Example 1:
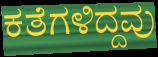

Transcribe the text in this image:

ಕತೆಗಳಿದ್ದವು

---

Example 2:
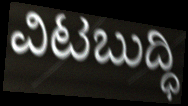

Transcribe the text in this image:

ವಿಟಬುದ್ಧಿ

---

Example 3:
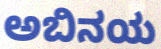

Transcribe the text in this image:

ಅಬಿನಯ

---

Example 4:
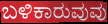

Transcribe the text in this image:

ಬಳಿಕಾರುವುವು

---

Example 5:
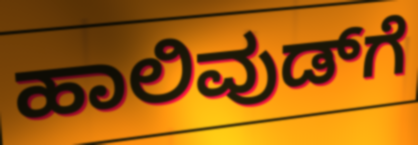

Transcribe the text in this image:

ಹಾಲಿವುಡ್‌ಗೆ